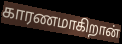
காரணமாகிறான்